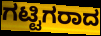
ಗಟ್ಟಿಗರಾದ